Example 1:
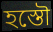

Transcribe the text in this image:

হস্তৌ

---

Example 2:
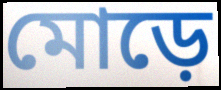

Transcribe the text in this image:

মোড়ে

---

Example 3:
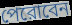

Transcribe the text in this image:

পেরোবেন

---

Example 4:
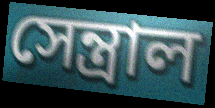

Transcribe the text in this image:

সেন্ত্রাল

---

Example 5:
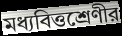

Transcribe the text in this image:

মধ্যবিত্তশ্রেণীর